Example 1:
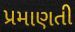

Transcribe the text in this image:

પ્રમાણતી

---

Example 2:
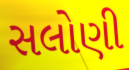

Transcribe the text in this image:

સલોણી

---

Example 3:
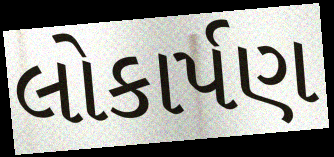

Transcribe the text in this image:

લોકાર્પણ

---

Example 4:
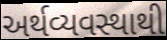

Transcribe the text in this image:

અર્થવ્યવસ્થાથી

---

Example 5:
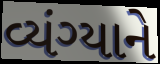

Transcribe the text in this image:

વ્યંગ્યાને